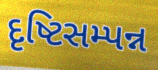
દૃષ્ટિસમ્પન્ન